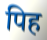
पिह